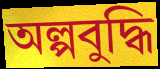
অল্পবুদ্ধি